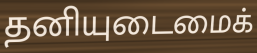
தனியுடைமைக்